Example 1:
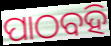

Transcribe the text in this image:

ପାଠବହି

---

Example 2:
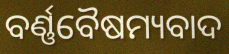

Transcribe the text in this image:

ବର୍ଣ୍ଣବୈଷମ୍ୟବାଦ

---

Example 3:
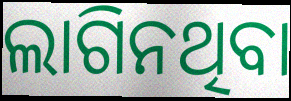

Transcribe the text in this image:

ଲାଗିନଥିବା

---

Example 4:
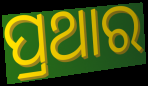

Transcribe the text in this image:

ପ୍ରଥାର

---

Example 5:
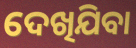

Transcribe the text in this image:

ଦେଖିଯିବା